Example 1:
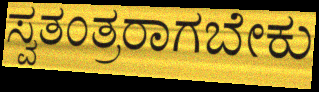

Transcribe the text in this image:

ಸ್ವತಂತ್ರರಾಗಬೇಕು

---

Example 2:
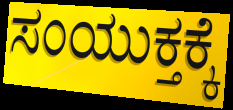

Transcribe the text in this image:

ಸಂಯುಕ್ತಕ್ಕೆ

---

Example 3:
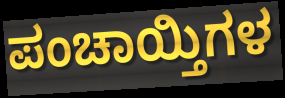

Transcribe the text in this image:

ಪಂಚಾಯ್ತಿಗಳ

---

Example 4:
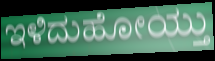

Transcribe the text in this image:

ಇಳಿದುಹೋಯ್ತು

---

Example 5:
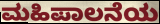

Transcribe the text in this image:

ಮಹಿಪಾಲನೆಯ